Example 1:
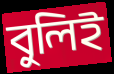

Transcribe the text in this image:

বুলিই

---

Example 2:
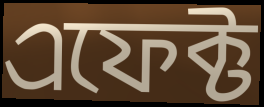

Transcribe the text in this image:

এফেক্ট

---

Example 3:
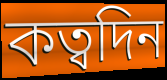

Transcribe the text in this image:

কত্বদিন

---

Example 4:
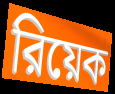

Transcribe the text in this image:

রিয়েক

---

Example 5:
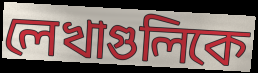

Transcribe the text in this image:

লেখাগুলিকে